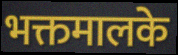
भक्तमालके